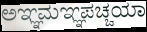
ಅಞ್ಞಮಞ್ಞಪಚ್ಚಯಾ